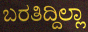
ಬರತಿದ್ದಿಲ್ಲಾ